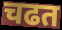
चढत